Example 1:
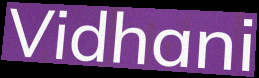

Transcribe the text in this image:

Vidhani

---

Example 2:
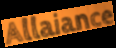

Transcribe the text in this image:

Allaiance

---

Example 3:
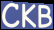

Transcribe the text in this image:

CKB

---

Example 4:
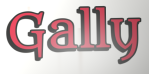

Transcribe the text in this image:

Gally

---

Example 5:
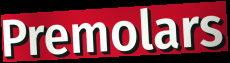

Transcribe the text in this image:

Premolars